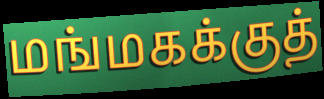
மங்மகக்குத்